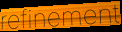
refinement